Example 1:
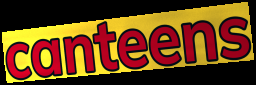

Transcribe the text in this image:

canteens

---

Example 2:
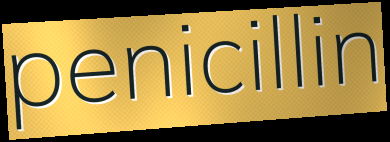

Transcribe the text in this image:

penicillin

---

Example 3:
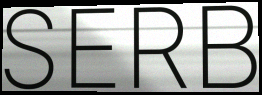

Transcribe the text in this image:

SERB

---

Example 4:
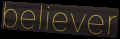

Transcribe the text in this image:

believer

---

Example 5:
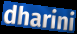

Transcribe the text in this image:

dharini